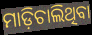
ମାଡ଼ିଚାଲିଥିବା